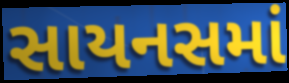
સાયનસમાં